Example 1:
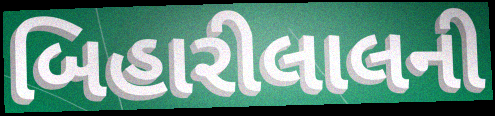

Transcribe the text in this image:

બિહારીલાલની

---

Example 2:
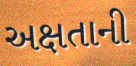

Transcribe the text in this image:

અક્ષતાની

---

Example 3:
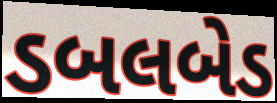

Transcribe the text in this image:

ડબલબેડ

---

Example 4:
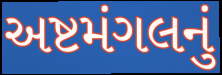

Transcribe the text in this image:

અષ્ટમંગલનું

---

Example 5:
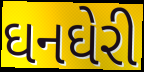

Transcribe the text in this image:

ઘનઘેરી